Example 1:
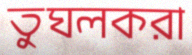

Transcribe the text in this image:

তুঘলকরা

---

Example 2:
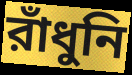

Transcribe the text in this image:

রাঁধুনি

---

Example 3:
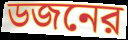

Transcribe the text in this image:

ডজনের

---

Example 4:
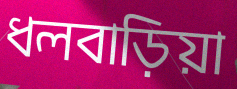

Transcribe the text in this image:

ধলবাড়িয়া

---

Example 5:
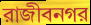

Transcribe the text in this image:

রাজীবনগর